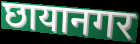
छायानगर